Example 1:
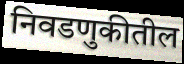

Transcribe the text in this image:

निवडणुकीतील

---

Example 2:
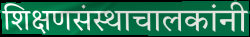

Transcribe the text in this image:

शिक्षणसंस्थाचालकांनी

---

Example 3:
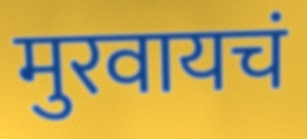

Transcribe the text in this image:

मुरवायचं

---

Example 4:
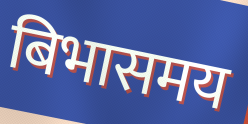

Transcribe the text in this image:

बिभासमय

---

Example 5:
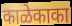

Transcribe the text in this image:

काळेकाका